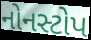
નોનસ્ટોપ